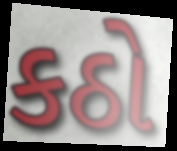
કઠો